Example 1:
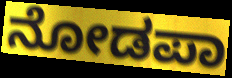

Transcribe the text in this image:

ನೋಡಪಾ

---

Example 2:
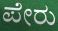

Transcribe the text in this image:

ಪೇರು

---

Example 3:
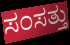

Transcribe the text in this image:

ಸಂಸತ್ತು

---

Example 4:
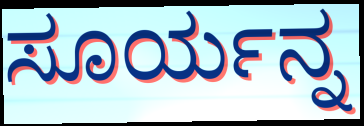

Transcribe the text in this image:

ಸೂರ್ಯನ್ನ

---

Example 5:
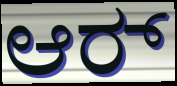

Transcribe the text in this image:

ಆರ್‍